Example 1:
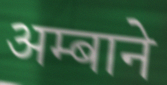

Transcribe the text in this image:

अम्बाने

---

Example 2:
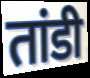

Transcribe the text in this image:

तांडी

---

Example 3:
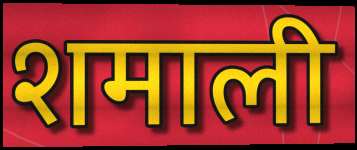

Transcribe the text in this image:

शमाली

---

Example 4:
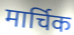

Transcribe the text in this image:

मार्चिक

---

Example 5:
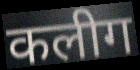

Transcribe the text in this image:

कलीग